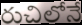
రుచిలోనే